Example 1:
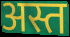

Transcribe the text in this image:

अस्त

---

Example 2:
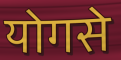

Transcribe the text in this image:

योगसे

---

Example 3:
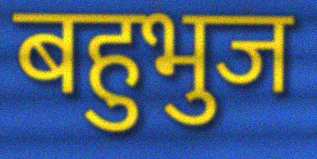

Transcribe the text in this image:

बहुभुज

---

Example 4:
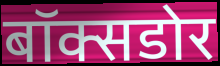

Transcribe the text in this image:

बॉक्सडोर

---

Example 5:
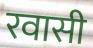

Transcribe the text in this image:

रवासी